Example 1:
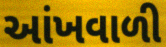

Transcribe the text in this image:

આંખવાળી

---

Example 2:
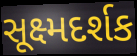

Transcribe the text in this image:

સૂક્ષ્મદર્શક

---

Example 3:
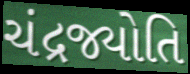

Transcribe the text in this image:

ચંદ્રજ્યોતિ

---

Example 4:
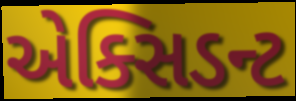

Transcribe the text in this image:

એક્સિડન્ટ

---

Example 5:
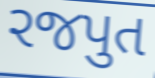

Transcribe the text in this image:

રજપુત